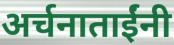
अर्चनाताईंनी